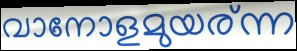
വാനോളമുയര്ന്ന